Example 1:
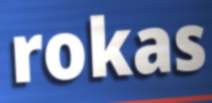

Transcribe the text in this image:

rokas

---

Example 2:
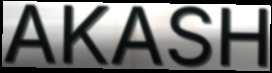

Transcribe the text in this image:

AKASH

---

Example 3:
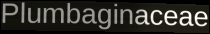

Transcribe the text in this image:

Plumbaginaceae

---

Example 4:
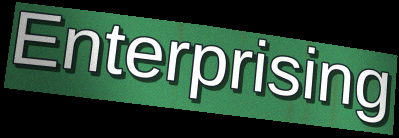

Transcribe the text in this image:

Enterprising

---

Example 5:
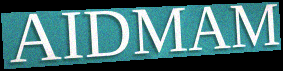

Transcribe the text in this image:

AIDMAM